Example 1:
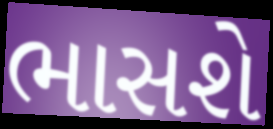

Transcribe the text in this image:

ભાસશે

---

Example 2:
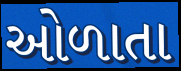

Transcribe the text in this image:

ઓળાતા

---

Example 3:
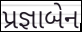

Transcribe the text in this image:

પ્રજ્ઞાબેન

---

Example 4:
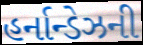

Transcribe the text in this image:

હર્નાન્ડેઝની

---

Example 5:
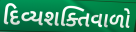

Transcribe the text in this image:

દિવ્યશક્તિવાળો